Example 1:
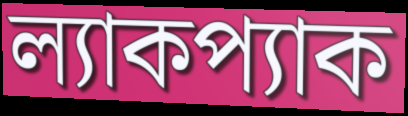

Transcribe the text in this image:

ল্যাকপ্যাক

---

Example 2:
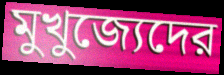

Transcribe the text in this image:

মুখুজ্যেদের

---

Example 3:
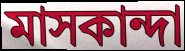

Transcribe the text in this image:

মাসকান্দা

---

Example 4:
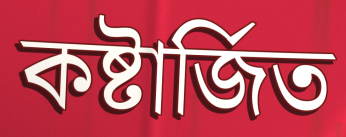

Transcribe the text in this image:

কষ্টার্জিত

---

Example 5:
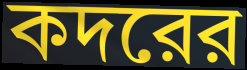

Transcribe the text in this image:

কদরের